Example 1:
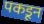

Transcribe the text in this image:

पकडून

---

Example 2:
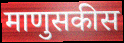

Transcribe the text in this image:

माणुसकीस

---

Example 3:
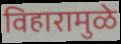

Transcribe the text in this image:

विहारामुळे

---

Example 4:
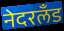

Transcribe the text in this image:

नेदरलँड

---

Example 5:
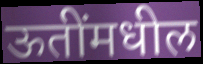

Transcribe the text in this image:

ऊतींमधील